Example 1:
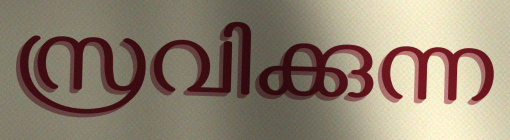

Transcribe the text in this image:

സ്രവിക്കുന്ന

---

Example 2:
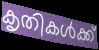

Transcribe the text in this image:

കൃതികൾക്ക്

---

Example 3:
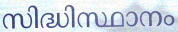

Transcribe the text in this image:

സിദ്ധിസ്ഥാനം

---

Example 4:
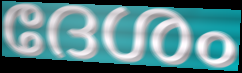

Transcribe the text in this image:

ദേശം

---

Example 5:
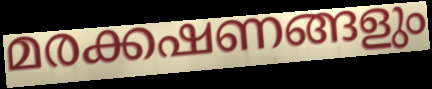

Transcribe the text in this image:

മരക്കഷണങ്ങളും